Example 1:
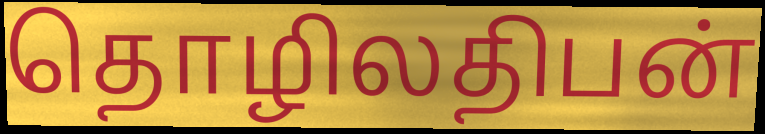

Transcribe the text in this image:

தொழிலதிபன்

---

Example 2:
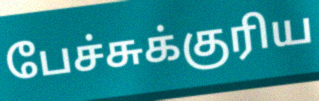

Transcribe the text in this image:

பேச்சுக்குரிய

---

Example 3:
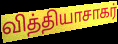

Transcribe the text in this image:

வித்தியாசாகர்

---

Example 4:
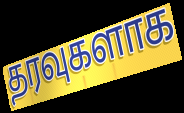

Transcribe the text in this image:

தரவுகளாக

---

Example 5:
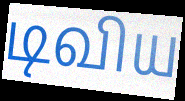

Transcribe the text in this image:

டிவிய